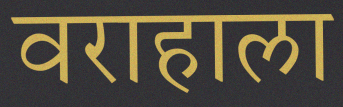
वराहाला